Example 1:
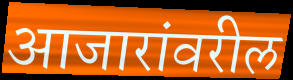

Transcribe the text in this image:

आजारांवरील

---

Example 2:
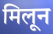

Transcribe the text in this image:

मिलून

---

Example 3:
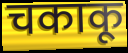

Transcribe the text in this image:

चकाकू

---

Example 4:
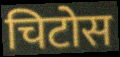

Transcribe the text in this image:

चिटोस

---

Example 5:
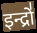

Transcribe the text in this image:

इन्द्रो॑